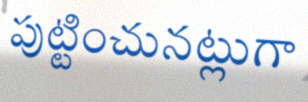
పుట్టించునట్లుగా